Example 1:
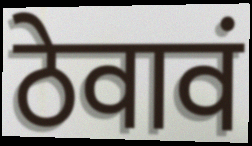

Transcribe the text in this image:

ठेवावं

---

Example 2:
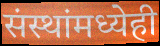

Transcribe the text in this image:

संस्थांमध्येही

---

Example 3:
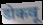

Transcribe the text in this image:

डोकवू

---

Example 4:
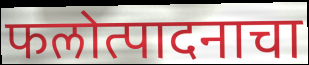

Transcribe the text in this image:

फलोत्पादनाचा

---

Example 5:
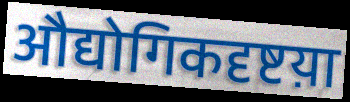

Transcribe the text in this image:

औद्योगिकदृष्टय़ा